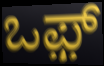
ಒಫ಼್